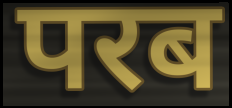
परब